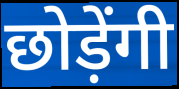
छोड़ेंगी